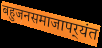
बहुजनसमाजापर्यंत